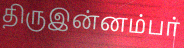
திருஇன்னம்பர்